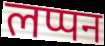
लप्पन